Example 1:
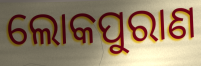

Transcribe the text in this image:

ଲୋକପୁରାଣ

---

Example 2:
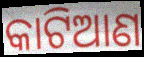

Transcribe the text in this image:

କାଟିଆଣ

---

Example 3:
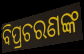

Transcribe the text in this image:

ବିପ୍ରଚରଣଙ୍କ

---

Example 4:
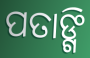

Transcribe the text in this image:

ପତାଙ୍ଗି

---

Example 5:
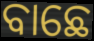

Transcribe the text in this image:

ବାଛେ